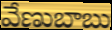
వేణుబాబు